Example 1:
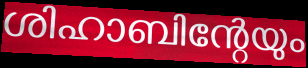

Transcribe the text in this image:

ശിഹാബിന്റേയും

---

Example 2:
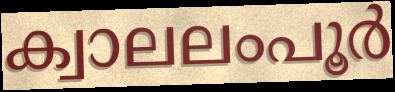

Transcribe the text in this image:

ക്വാലലംപൂർ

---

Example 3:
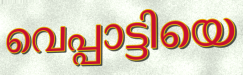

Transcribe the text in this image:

വെപ്പാട്ടിയെ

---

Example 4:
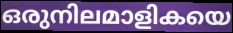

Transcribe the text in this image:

ഒരുനിലമാളികയെ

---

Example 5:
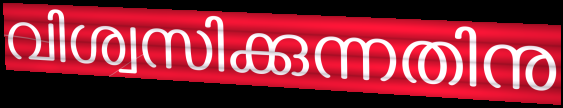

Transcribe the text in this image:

വിശ്വസിക്കുന്നതിനു